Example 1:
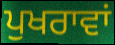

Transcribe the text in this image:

ਪੁਖਰਾਵਾਂ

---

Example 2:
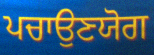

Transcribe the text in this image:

ਪਚਾਉਣਯੋਗ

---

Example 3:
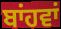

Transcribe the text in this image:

ਬਾਂਹਵਾਂ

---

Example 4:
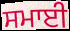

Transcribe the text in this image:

ਸਮਾਈ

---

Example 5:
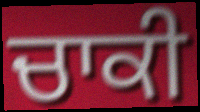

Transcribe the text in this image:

ਚਾਕੀ